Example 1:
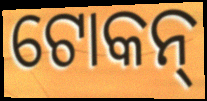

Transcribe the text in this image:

ଟୋକନ୍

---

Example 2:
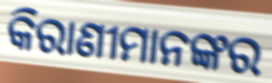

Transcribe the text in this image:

କିରାଣୀମାନଙ୍କର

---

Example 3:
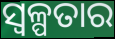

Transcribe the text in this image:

ସ୍ଵଳ୍ପତାର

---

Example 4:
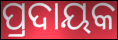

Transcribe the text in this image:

ପ୍ରଦାୟକ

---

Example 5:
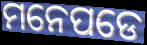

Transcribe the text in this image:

ମନେପଡେ